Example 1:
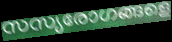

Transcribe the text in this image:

സസ്യരോഗങ്ങളെ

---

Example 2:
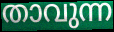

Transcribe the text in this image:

താവുന്ന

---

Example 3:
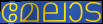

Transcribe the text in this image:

മേലാട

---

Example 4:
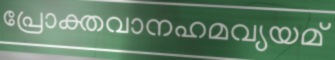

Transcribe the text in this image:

പ്രോക്തവാനഹമവ്യയമ്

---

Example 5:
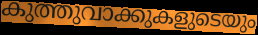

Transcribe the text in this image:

കുത്തുവാക്കുകളുടെയും